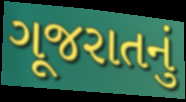
ગૂજરાતનું